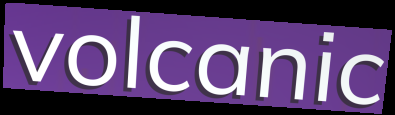
volcanic